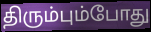
திரும்பும்போது